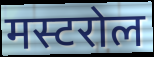
मस्टरोल